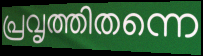
പ്രവൃത്തിതന്നെ